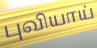
புவியாய்